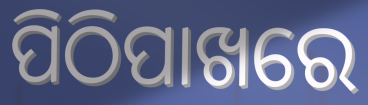
ପିଠିପାଖରେ